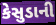
કેસુડાની